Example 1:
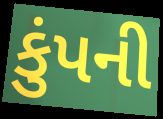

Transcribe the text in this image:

કુંપની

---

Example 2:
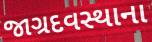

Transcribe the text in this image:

જાગ્રદવસ્થાના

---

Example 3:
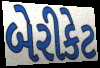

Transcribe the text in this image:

બેરીકેટ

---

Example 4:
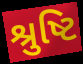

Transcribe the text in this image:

શ્રુષ્ટિ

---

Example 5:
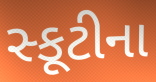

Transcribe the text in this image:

સ્કૂટીના